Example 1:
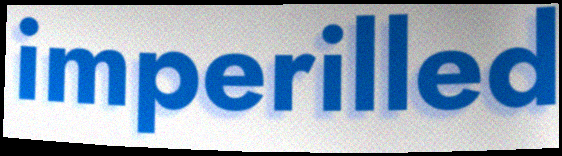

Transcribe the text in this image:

imperilled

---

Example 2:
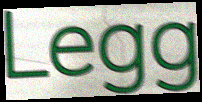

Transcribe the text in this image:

Legg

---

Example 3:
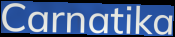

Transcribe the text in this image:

Carnatika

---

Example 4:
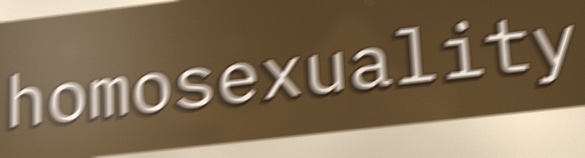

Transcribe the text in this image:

homosexuality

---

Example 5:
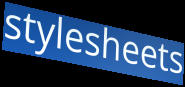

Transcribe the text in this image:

stylesheets